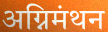
अग्निमंथन